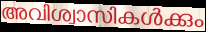
അവിശ്വാസികൾക്കും